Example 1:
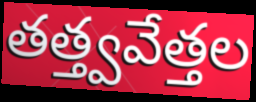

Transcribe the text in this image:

తత్త్వవేత్తల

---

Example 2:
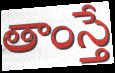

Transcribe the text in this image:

తాంస్తే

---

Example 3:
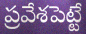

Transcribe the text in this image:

ప్రవేశపెట్టే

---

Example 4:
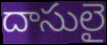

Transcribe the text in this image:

దాసులై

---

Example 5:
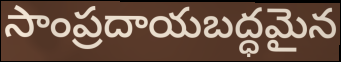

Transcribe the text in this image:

సాంప్రదాయబద్ధమైన